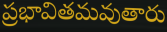
ప్రభావితమవుతారు